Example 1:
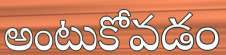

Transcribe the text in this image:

అంటుకోవడం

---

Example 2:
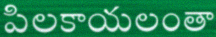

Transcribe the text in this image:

పిలకాయలంతా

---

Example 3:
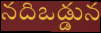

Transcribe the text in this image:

నదిఒడ్డున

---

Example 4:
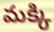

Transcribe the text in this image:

మక్కి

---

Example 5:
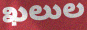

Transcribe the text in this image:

ఖలుల